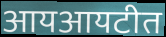
आयआयटीत